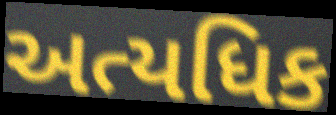
અત્યધિક